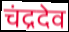
चंद्रदेव